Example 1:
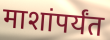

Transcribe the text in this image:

माशांपर्यंत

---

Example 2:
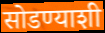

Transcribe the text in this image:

सोडण्याशी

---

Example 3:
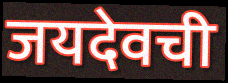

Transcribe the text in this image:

जयदेवची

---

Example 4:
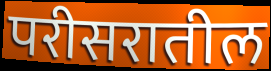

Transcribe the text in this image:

परीसरातील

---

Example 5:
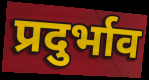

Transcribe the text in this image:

प्रदुर्भाव